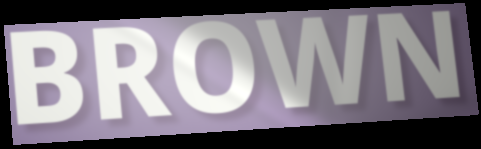
BROWN